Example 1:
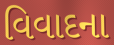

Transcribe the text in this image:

વિવાદના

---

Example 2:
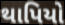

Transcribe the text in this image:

થાપિયો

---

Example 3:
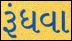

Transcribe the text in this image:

રૂંધવા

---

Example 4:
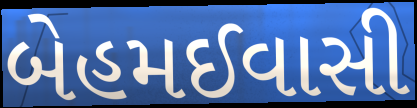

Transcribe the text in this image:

બેહમઈવાસી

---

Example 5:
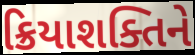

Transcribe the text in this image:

ક્રિયાશક્તિને